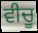
ਵੀਚੂ